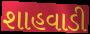
શાહવાડી